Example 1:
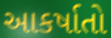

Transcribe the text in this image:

આકર્ષાતો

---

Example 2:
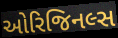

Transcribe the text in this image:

ઓરિજિનલ્સ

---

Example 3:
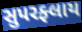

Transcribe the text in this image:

સુપરફ્લાય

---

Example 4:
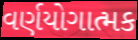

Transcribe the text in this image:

વર્ણયોગાત્મક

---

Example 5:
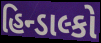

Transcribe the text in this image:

હિન્ડાલ્કો